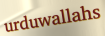
urduwallahs